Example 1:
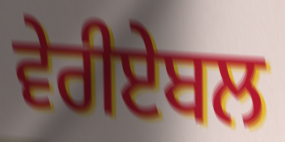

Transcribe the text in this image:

ਵੇਰੀਏਬਲ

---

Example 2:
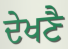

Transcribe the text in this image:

ਦੇਖਣੈ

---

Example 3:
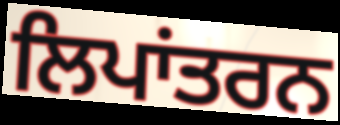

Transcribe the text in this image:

ਲਿਪਾਂਤਰਨ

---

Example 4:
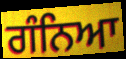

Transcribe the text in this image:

ਗੰਨਿਆ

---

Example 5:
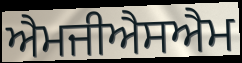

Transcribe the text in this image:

ਐਮਜੀਐਸਐਮ